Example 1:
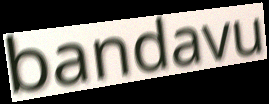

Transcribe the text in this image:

bandavu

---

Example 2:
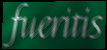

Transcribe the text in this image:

fueritis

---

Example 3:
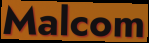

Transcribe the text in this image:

Malcom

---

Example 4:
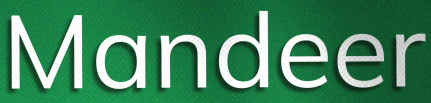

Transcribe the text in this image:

Mandeer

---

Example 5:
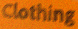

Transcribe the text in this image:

Clothing